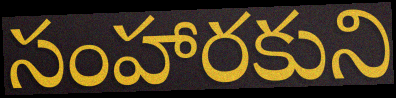
సంహారకుని